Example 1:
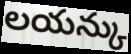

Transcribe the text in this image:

లయన్కు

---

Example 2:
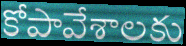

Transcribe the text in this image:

కోపావేశాలకు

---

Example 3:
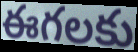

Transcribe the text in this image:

ఈగలకు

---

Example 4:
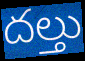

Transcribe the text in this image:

దల్తు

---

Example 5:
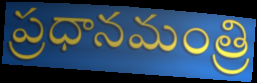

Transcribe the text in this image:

ప్రధానమంత్రి